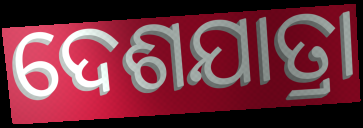
ଦେଶଯାତ୍ରା